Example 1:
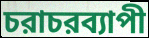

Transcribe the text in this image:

চরাচরব্যাপী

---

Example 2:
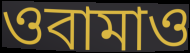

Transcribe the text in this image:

ওবামাও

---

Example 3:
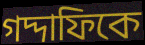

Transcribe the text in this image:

গদ্দাফিকে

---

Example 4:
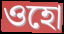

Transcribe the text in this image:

ওহো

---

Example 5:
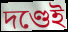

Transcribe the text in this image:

দণ্ডেই